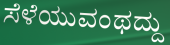
ಸೆಳೆಯುವಂಥದ್ದು